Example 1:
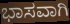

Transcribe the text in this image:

ಭಾಸವಾಗಿ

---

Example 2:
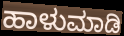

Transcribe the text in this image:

ಹಾಳುಮಾಡಿ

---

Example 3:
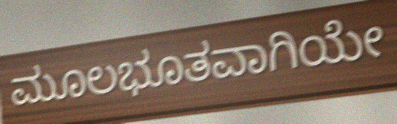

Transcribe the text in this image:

ಮೂಲಭೂತವಾಗಿಯೇ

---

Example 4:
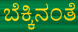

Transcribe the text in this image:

ಬೆಕ್ಕಿನಂತೆ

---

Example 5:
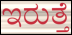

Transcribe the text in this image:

ಇರುತ್ತೆ